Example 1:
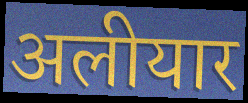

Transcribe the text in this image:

अलीयार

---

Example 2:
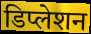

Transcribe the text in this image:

डिप्लेशन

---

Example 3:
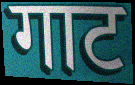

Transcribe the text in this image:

गाट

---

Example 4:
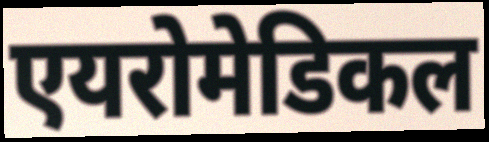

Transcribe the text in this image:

एयरोमेडिकल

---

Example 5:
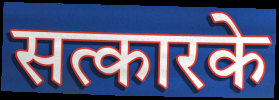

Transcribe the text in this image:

सत्कारके